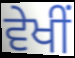
ਵੇਖੀਂ